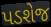
પડશેજ